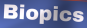
Biopics